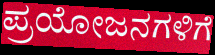
ಪ್ರಯೋಜನಗಳಿಗೆ